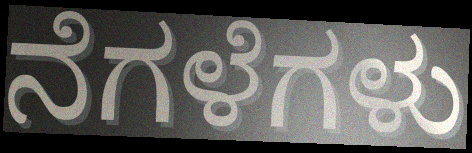
ನೆಗಳೆಗಳು